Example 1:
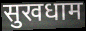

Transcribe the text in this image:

सुखधाम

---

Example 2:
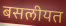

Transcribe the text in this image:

बसलीयत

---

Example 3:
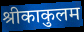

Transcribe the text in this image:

श्रीकाकुलम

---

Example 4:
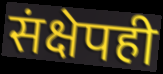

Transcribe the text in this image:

संक्षेपही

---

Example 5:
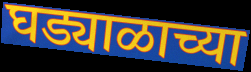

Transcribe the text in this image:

घड्याळाच्या